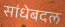
सांधेबदल